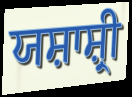
ਯਸ਼ਾਸ਼੍ਰੀ